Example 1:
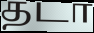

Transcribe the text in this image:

தடா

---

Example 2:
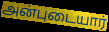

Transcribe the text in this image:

அன்புடையார்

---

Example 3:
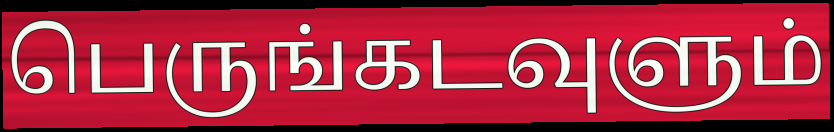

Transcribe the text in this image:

பெருங்கடவுளும்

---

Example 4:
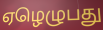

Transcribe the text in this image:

ஏழெழுபது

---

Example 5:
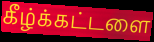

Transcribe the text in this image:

கீழ்க்கட்டளை